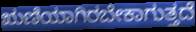
ಋಣಿಯಾಗಿರಬೇಕಾಗುತ್ತದೆ